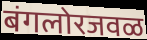
बंगलोरजवळ